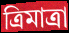
ত্রিমাত্রা